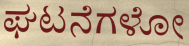
ಘಟನೆಗಳೋ